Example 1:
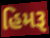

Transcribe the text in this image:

હિમરૂ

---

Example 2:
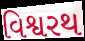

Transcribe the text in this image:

વિશ્વરથ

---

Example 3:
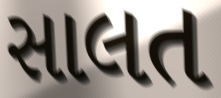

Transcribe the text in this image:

સાલત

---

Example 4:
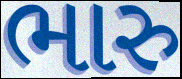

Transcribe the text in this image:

ભારુ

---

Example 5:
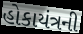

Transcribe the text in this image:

હોકાયંત્રની